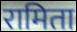
रामिता